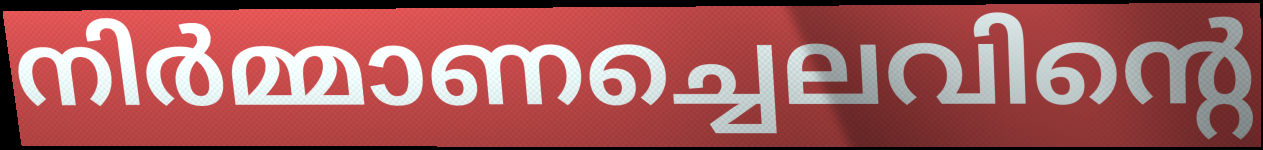
നിർമ്മാണച്ചെലവിന്റെ